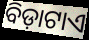
ବିଡ଼ାଟାଏ